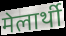
मेलार्थी